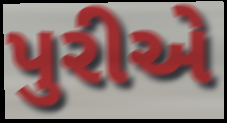
પુરીએ